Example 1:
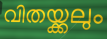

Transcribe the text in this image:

വിതയ്ക്കലും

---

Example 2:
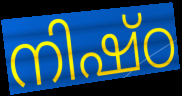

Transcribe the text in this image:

നിഷ്ഠ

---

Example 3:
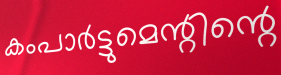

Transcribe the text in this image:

കംപാർട്ടുമെന്റിന്റെ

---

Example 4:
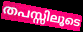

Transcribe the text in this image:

തപസ്സിലൂടെ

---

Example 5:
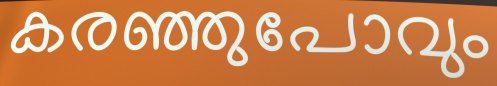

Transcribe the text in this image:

കരഞ്ഞുപോവും